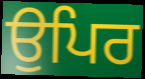
ਉਪਿਰ